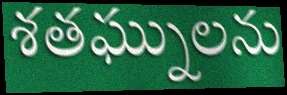
శతఘ్నులను